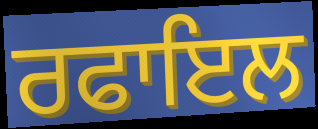
ਰਫਾਇਲ